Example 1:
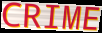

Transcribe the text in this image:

CRIME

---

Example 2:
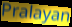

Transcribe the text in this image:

Pralayan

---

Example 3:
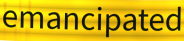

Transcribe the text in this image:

emancipated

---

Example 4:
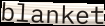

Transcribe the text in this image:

blanket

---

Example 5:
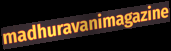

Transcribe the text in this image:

madhuravanimagazine